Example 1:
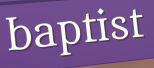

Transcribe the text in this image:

baptist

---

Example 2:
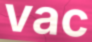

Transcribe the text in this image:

vac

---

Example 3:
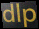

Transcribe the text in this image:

dlp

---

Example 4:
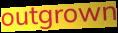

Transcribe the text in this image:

outgrown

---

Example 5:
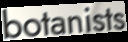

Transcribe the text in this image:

botanists